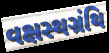
વક્ષસ્થગ્રંથિ